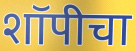
शॉपीचा